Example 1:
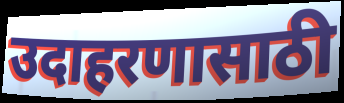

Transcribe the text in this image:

उदाहरणासाठी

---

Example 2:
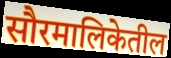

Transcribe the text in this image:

सौरमालिकेतील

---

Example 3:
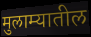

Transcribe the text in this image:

मुलाम्यातील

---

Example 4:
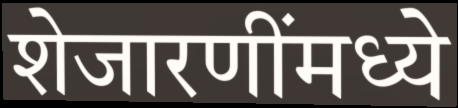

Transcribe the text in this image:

शेजारणींमध्ये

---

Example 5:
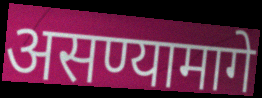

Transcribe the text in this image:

असण्यामागे